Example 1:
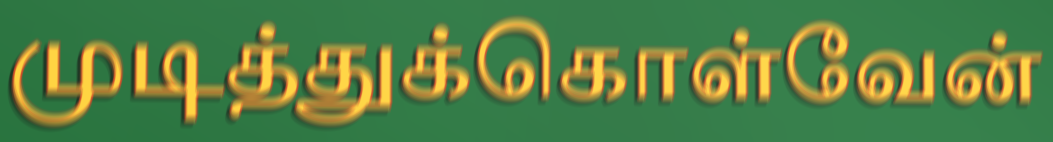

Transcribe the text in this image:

முடித்துக்கொள்வேன்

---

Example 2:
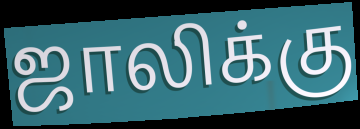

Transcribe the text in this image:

ஜாலிக்கு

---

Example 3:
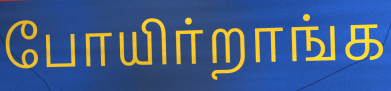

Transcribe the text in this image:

போயிர்றாங்க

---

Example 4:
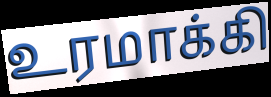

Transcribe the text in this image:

உரமாக்கி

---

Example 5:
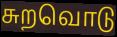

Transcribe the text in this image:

சுறவொடு